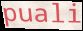
puali